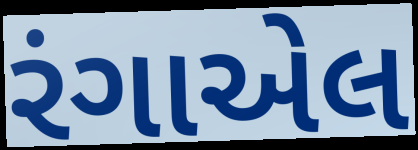
રંગાએલ